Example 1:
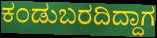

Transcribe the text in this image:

ಕಂಡುಬರದಿದ್ದಾಗ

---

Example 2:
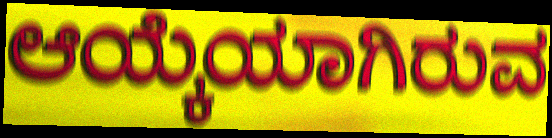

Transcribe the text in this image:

ಆಯ್ಕೆಯಾಗಿರುವ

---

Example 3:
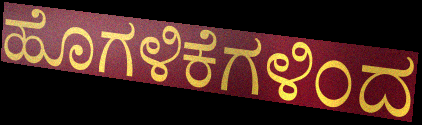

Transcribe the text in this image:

ಹೊಗಳಿಕೆಗಳಿಂದ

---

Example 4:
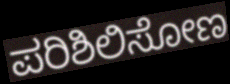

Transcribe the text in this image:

ಪರಿಶಿಲಿಸೋಣ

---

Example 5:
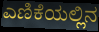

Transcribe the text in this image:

ಎಣಿಕೆಯಲ್ಲಿನ